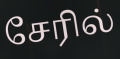
சேரில்